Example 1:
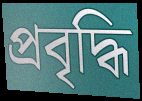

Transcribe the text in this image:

প্রবৃদ্ধি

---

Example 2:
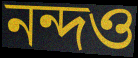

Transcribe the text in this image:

নন্দও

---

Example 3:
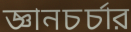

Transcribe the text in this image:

জ্ঞানচর্চার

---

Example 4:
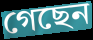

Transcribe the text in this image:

গেছেন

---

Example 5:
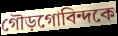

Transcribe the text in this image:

গৌড়গোবিন্দকে